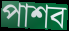
পাশব